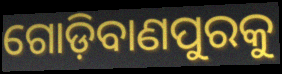
ଗୋଡ଼ିବାଣପୁରକୁ